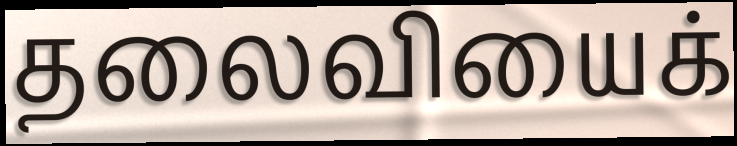
தலைவியைக்